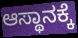
ಆಸ್ಥಾನಕ್ಕೆ